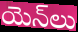
యెన్‌లు